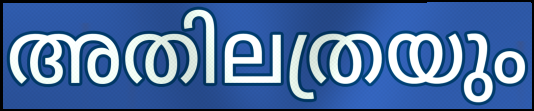
അതിലത്രയും